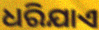
ଧରିଯାଏ